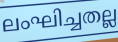
ലംഘിച്ചതല്ല